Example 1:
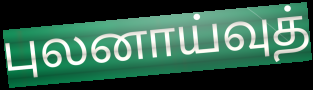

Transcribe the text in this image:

புலனாய்வுத்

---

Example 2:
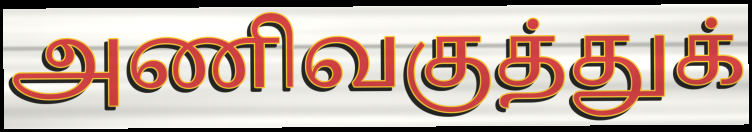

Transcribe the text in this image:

அணிவகுத்துக்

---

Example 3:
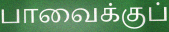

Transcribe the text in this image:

பாவைக்குப்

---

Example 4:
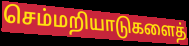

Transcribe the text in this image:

செம்மறியாடுகளைத்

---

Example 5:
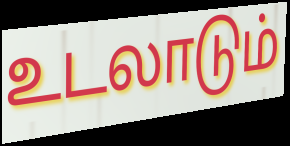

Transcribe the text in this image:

உடலாடும்